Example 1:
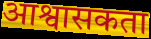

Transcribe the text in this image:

आश्वासकता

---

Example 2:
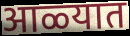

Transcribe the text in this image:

आळ्यात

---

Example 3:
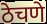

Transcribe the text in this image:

ठेचणे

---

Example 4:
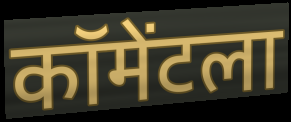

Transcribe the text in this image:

कॉमेंटला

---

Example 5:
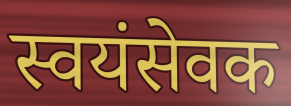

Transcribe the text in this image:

स्वयंसेवक